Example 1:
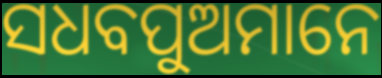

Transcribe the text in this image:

ସଧବପୁଅମାନେ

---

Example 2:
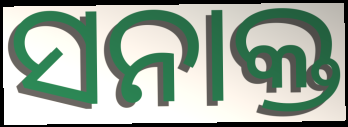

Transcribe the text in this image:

ସନାକ୍ତ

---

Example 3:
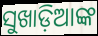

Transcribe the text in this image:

ସୁଖାଡ଼ିଆଙ୍କ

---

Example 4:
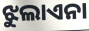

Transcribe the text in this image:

ଝୁଲାଏନା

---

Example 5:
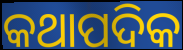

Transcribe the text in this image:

କଥାପଦିକ